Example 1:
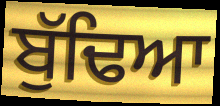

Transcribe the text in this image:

ਬੁੱਢਿਆ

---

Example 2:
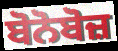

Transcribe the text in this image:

ਬੋਨੋਬੋਜ਼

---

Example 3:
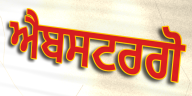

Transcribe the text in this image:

ਐਬਸਟਰਗੋ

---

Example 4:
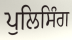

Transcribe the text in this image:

ਪੁਲਿਸਿੰਗ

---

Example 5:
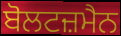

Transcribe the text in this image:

ਬੋਲਟਜ਼ਮੈਨ